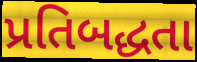
પ્રતિબદ્ધતા